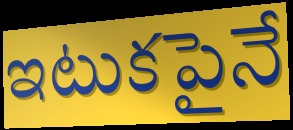
ఇటుకపైనే